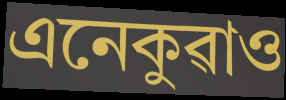
এনেকুৱাও